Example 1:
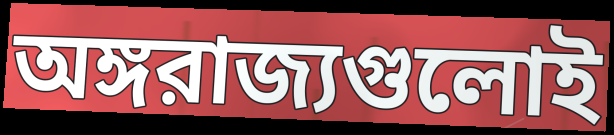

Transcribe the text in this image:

অঙ্গরাজ্যগুলোই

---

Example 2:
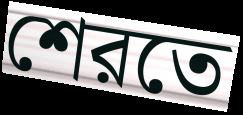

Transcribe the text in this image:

শেরতে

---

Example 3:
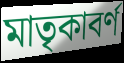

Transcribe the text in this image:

মাতৃকাবর্ণ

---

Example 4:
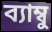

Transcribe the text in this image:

ব্যাম্বু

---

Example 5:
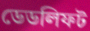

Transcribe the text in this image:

ডেডলিফট